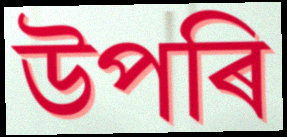
উপৰি